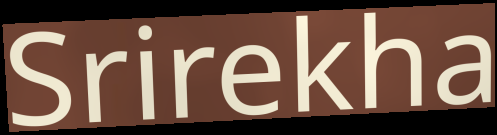
Srirekha